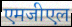
एमजीएल